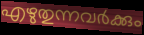
എഴുതുന്നവർക്കും